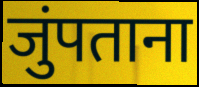
जुंपताना